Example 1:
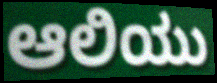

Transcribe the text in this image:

ಆಲಿಯು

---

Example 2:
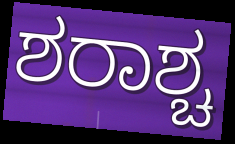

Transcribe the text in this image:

ಶರಾಶ್ಚ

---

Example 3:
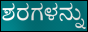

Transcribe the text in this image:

ಶರಗಳನ್ನು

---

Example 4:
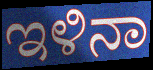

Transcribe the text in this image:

ಇಳಿನಾ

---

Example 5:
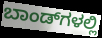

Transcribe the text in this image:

ಬಾಂಡ್‌ಗಳಲ್ಲಿ